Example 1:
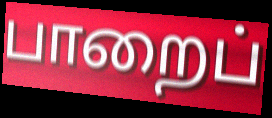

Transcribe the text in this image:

பாறைப்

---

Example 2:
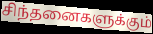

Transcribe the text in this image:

சிந்தனைகளுக்கும்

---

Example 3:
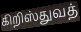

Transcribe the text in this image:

கிறிஸ்துவத்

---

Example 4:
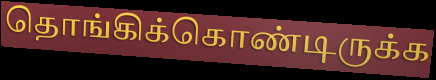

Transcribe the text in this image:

தொங்கிக்கொண்டிருக்க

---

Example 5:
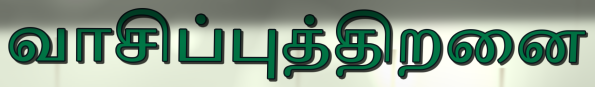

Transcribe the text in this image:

வாசிப்புத்திறனை